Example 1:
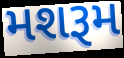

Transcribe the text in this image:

મશરૂમ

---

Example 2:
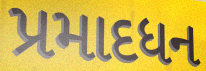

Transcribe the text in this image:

પ્રમાદધન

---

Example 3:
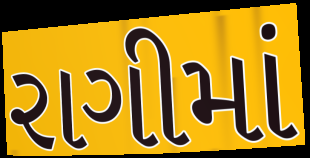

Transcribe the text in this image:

રાગીમાં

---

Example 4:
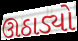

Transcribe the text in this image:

ઊઠાડ્યો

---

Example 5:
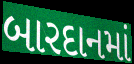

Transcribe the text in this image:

બારદાનમાં